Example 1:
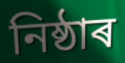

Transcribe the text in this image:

নিষ্ঠাৰ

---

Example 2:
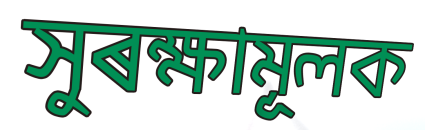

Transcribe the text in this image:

সুৰক্ষামূলক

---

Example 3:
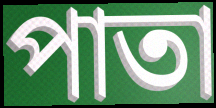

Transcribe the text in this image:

পাতা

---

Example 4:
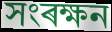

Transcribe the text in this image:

সংৰক্ষন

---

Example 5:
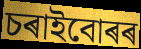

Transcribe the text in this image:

চৰাইবোৰৰ